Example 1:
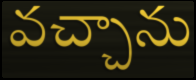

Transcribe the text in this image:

వచ్చాను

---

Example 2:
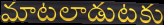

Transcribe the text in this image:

మాటలాడుటకు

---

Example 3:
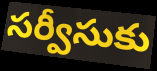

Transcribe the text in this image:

సర్వీసుకు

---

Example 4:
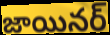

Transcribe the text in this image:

జాయినర్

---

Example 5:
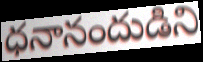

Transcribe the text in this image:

ధనానందుడిని